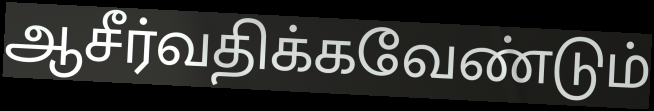
ஆசீர்வதிக்கவேண்டும்